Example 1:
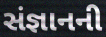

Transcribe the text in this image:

સંજ્ઞાનની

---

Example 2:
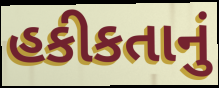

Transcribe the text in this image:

હકીકતાનું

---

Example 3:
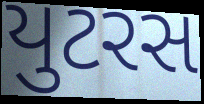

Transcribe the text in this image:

યુટરસ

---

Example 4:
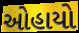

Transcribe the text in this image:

ઓહાયો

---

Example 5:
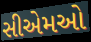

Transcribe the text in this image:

સીએમઓ